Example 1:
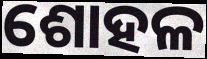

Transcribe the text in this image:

ଶୋହଳ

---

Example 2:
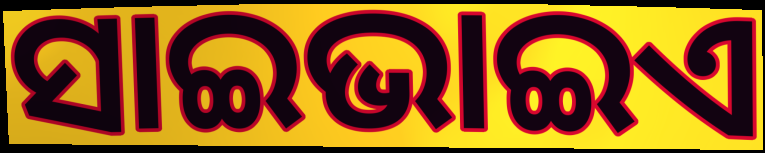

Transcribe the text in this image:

ସାଇଭାଇଏ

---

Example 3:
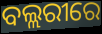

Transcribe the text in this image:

ବଲ୍ଲରୀରେ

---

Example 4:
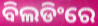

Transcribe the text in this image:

ବିଲଡିଂରେ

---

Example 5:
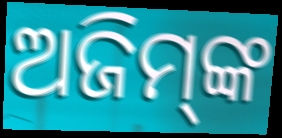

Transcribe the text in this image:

ଅଜିମ୍‌ଙ୍କ